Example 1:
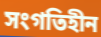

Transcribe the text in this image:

সংগতিহীন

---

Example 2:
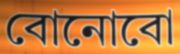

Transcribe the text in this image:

বোনোবো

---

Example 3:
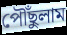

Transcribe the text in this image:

পৌঁছুলাম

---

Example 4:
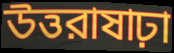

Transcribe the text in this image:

উত্তরাষাঢ়া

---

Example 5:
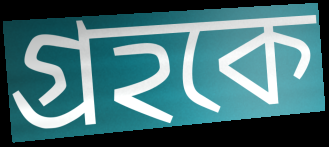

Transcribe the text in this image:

গ্রহকে